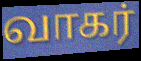
வாகர்